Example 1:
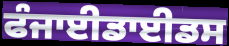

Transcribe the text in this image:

ਫੰਜਾਈਡਾਈਡਸ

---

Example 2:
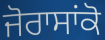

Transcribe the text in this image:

ਜੋਰਾਸਾਂਕੋ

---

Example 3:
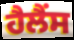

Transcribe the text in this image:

ਹੈਲੈਂਸ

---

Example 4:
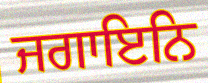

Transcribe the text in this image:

ਜਗਾਇਨਿ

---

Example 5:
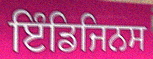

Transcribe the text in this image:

ਇੰਡਿਜਿਨਸ